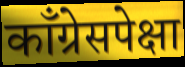
काँग्रेसपेक्षा